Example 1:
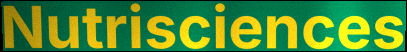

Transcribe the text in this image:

Nutrisciences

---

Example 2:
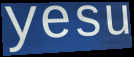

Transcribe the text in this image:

yesu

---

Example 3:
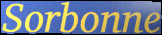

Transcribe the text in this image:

Sorbonne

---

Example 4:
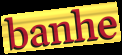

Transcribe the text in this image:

banhe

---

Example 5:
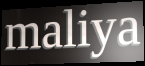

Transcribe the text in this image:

maliya